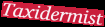
Taxidermist